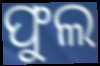
ଫୁଲ